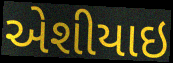
એશીયાઇ